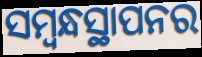
ସମ୍ବନ୍ଧସ୍ଥାପନର